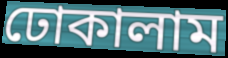
ঢোকালাম